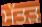
ਮੱਤੜ